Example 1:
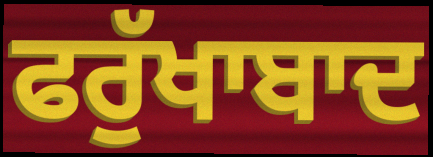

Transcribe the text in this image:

ਫਰੁੱਖਾਬਾਦ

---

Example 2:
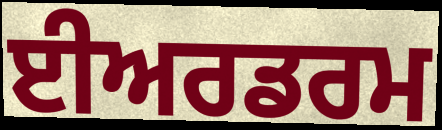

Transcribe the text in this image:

ਈਅਰਡਰਮ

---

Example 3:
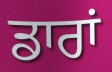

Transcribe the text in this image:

ਡਾਰਾਂ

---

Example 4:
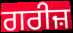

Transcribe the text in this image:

ਗਰੀਜ਼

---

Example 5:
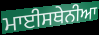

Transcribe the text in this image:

ਮਾਈਸਥੇਨੀਆ